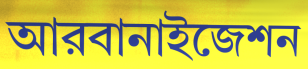
আরবানাইজেশন